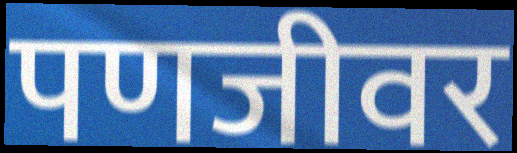
पणजीवर